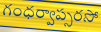
గంధర్వాప్సరసో